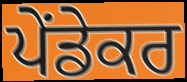
ਪੇਂਡੇਕਰ